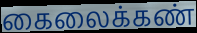
கைலைக்கண்